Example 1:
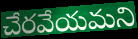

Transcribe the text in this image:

చేరవేయమని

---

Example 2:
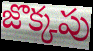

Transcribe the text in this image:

జొక్కపు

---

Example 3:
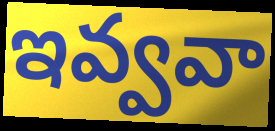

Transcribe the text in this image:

ఇవ్వవా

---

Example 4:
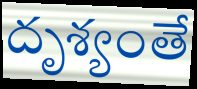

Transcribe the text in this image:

దృశ్యంతే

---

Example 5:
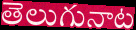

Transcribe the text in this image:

తెలుగునాట